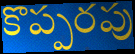
కొప్పరపు